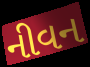
નીવન